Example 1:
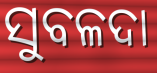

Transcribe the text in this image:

ସୁବଳଦା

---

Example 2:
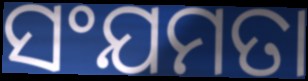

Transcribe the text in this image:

ସଂଯମତା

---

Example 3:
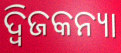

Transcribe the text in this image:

ଦ୍ୱିଜକନ୍ୟା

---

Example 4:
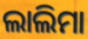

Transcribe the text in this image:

ଲାଲିମା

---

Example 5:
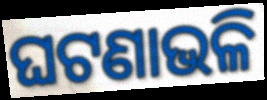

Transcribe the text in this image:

ଘଟଣାଭଳି